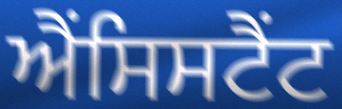
ਐਂਸਿਸਟੈਂਟ